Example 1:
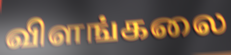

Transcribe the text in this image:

விளங்கலை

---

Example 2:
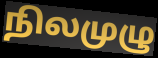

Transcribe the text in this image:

நிலமுழு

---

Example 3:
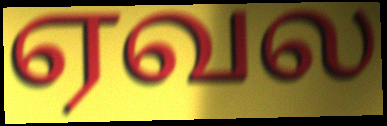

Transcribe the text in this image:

ஏவல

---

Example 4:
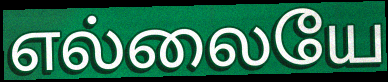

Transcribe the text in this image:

எல்லையே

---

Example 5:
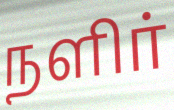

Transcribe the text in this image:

நளிர்